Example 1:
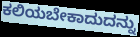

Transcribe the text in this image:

ಕಲಿಯಬೇಕಾದುದನ್ನು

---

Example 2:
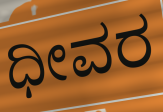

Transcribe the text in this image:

ಧೀವರ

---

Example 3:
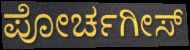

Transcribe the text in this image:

ಪೋರ್ಚಗೀಸ್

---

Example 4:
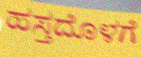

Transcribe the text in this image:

ಹಸ್ತದೊಳಗೆ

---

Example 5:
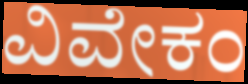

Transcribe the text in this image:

ವಿವೇಕಂ